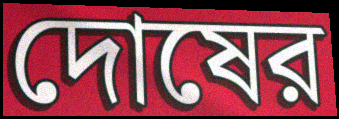
দোষের